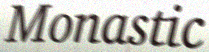
Monastic